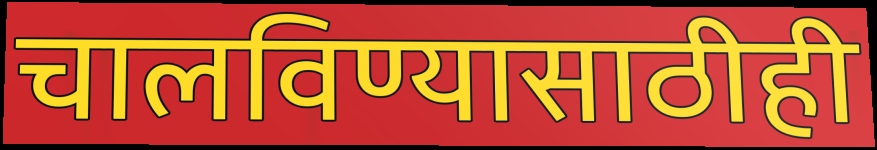
चालविण्यासाठीही